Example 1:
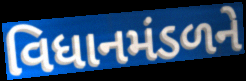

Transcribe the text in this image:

વિધાનમંડળને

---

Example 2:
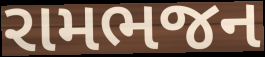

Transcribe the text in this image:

રામભજન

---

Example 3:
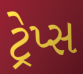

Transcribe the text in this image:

ટ્રેપ્સ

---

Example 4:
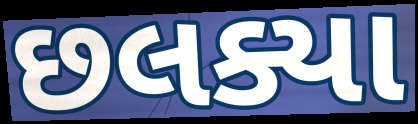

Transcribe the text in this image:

છલક્યા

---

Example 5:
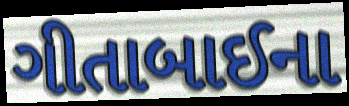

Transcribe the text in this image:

ગીતાબાઈના